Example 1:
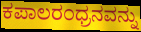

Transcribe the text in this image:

ಕಪಾಲರಂಧ್ರನವನ್ನು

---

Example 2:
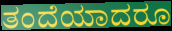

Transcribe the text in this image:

ತಂದೆಯಾದರೂ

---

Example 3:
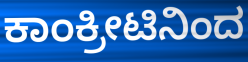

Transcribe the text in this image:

ಕಾಂಕ್ರೀಟಿನಿಂದ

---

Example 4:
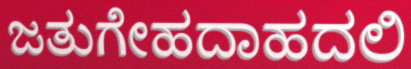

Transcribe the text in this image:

ಜತುಗೇಹದಾಹದಲಿ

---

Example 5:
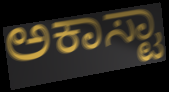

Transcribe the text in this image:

ಅಕಾಸ್ಟಾ